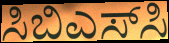
ಸಿಬಿಎಸ್‌ಸಿ